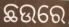
ଛଉରେ